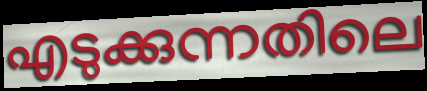
എടുക്കുന്നതിലെ